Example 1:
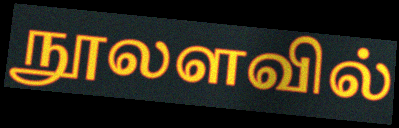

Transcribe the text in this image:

நூலளவில்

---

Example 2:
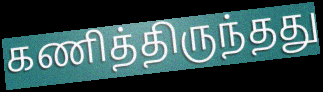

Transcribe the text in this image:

கணித்திருந்தது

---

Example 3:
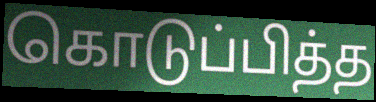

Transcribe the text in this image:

கொடுப்பித்த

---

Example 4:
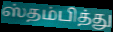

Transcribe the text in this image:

ஸ்தம்பித்து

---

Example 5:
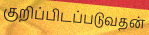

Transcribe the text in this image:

குறிப்பிடப்படுவதன்